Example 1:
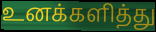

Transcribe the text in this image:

உனக்களித்து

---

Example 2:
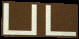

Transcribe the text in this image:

பட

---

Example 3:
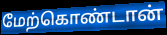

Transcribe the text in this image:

மேற்கொண்டான்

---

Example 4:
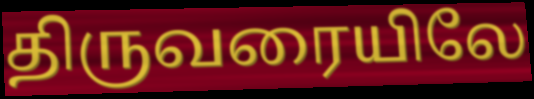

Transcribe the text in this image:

திருவரையிலே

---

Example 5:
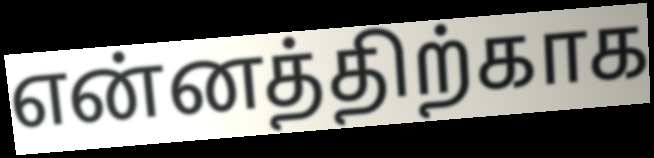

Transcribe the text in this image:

என்னத்திற்காக